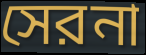
সেরনা